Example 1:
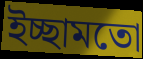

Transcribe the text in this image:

ইচ্ছামতো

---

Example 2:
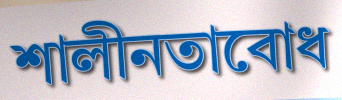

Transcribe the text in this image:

শালীনতাবোধ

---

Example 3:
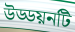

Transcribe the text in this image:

উড্ডয়নটি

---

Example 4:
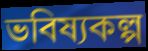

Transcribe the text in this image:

ভবিষ্যকল্প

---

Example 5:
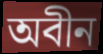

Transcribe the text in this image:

অবীন